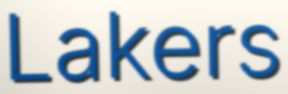
Lakers